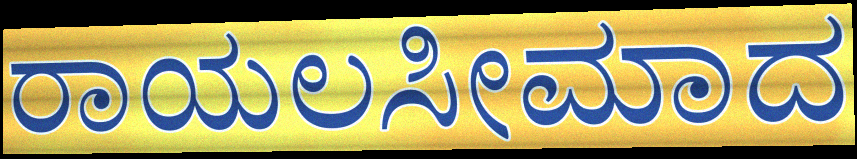
ರಾಯಲಸೀಮಾದ